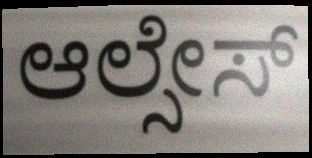
ಆಲ್ಸೇಸ್